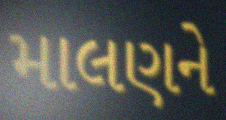
માલણને